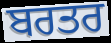
ਬਰਤਰ